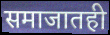
समाजातही